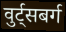
वुर्ट्सबर्ग